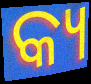
କ୍ୟ